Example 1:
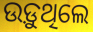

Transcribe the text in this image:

ଉଡ଼ୁଥିଲେ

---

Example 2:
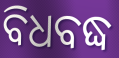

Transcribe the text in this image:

ବିଧବଦ୍ଧ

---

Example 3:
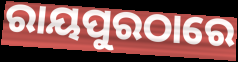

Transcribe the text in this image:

ରାୟପୁରଠାରେ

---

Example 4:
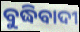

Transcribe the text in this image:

ବୁଦ୍ଧିବାଦୀ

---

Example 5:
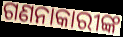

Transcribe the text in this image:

ଗଣନାକାରୀଙ୍କ